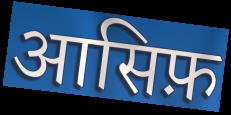
आसिफ़